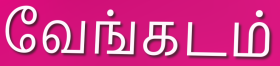
வேங்கடம்